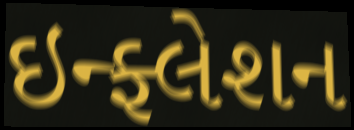
ઇન્ફ્લેશન